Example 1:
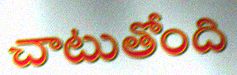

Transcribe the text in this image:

చాటుతోంది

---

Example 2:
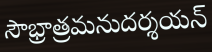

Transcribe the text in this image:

సౌభ్రాత్రమనుదర్శయన్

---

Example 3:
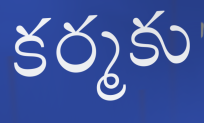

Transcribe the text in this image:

కర్మకు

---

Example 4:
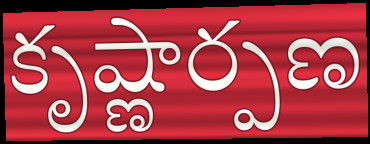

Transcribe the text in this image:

కృష్ణార్పణ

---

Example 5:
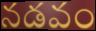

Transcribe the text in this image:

నడవం